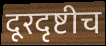
दूरदृष्टीच